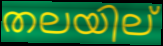
തലയില്